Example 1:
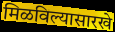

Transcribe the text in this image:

मिळविल्यासारखे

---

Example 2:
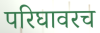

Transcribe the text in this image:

परिघावरच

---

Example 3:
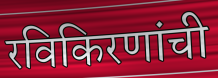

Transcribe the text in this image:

रविकिरणांची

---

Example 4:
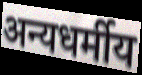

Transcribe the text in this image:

अन्यधर्मीय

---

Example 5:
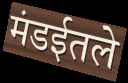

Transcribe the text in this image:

मंडईतले